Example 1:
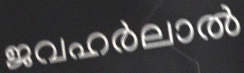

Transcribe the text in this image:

ജവഹർലാൽ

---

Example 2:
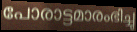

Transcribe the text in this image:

പോരാട്ടമാരംഭിച്ചു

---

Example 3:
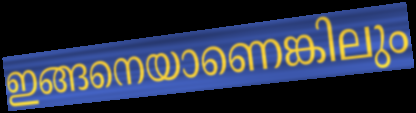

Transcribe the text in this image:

ഇങ്ങനെയാണെങ്കിലും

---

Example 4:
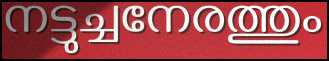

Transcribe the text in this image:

നട്ടുച്ചനേരത്തും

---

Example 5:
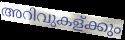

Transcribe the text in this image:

അറിവുകള്ക്കും